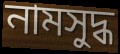
নামসুদ্ধ